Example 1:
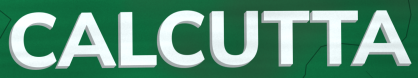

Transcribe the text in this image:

CALCUTTA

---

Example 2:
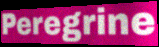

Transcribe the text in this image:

Peregrine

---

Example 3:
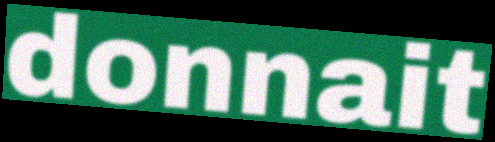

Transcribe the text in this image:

donnait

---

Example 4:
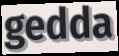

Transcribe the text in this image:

gedda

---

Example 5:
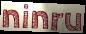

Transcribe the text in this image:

ninru